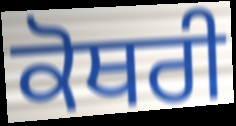
ਕੋਥਰੀ